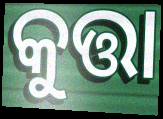
କୁତ୍ତା